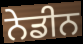
ਨੇਡੀਨ